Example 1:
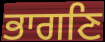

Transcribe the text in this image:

ਭਾਗਣਿ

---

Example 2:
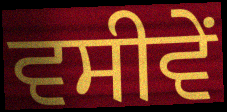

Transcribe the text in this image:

ਵਸੀਵੇਂ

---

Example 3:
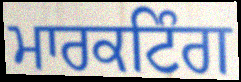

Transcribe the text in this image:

ਮਾਰਕਟਿੰਗ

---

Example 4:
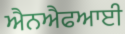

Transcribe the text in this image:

ਐਨਐਫਆਈ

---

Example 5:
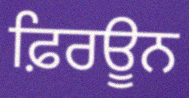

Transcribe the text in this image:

ਫ਼ਿਰਊਨ